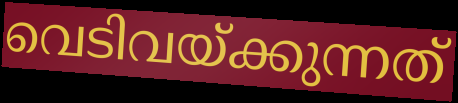
വെടിവയ്ക്കുന്നത്